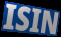
ISIN